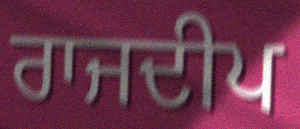
ਰਾਜਦੀਪ